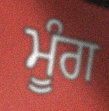
ਮੂੰਗ